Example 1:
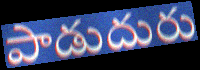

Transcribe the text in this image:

పాడుదురు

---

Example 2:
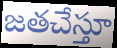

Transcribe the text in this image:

జతచేస్తూ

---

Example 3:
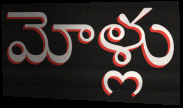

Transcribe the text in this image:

మోళ్లు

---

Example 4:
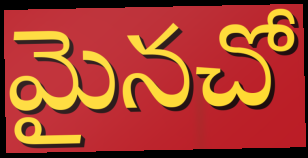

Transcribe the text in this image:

మైనచో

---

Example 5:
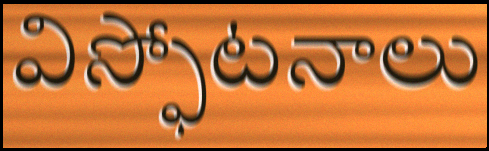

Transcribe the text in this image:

విస్ఫోటనాలు